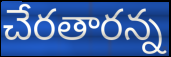
చేరతారన్న